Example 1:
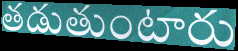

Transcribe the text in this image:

తడుతుంటారు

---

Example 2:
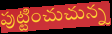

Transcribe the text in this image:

పుట్టించుచున్న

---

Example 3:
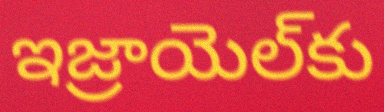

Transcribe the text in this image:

ఇజ్రాయెల్‌కు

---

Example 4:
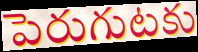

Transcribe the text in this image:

పెరుగుటకు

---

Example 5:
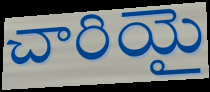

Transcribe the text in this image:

చారియై